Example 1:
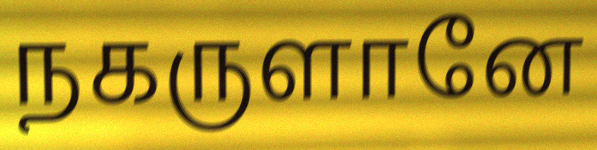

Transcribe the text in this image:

நகருளானே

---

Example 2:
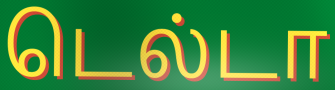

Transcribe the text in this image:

டெல்டா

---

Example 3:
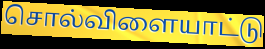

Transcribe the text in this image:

சொல்விளையாட்டு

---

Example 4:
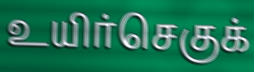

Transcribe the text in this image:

உயிர்செகுக்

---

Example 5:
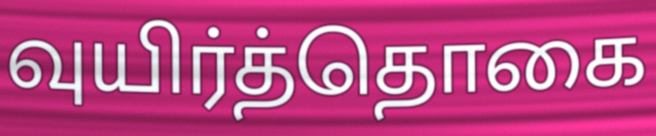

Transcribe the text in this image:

வுயிர்த்தொகை